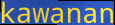
kawanan